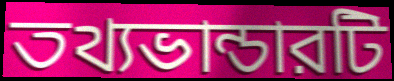
তথ্যভান্ডারটি